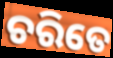
ଚରିତେ